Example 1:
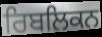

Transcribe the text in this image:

ਰਿਬਲਿਕਨ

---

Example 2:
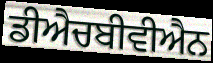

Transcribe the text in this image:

ਡੀਐਚਬੀਵੀਐਨ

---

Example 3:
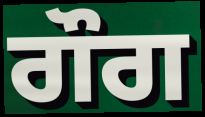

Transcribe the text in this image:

ਗੌਗ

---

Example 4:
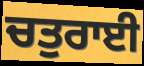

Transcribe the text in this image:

ਚਤੁਰਾਈ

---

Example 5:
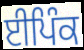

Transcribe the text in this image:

ਈਪਿੰਕ